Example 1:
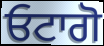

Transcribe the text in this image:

ਓਟਾਗੋ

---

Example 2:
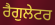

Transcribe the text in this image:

ਰੈਗੁਲੇਟਰ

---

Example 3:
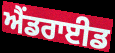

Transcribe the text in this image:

ਐਂਡਰਾਈਡ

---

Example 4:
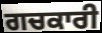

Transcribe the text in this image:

ਗਚਕਾਰੀ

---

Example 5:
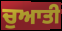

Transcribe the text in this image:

ਚੁਆਤੀ